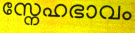
സ്നേഹഭാവം